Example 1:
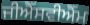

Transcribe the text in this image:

ਜੀਐੱਸਵੀਐੱਮ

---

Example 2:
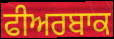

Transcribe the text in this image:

ਫੀਅਰਬਾਕ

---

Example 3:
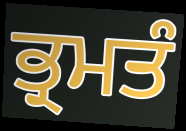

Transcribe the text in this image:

ਭ੍ਰਮਤੰ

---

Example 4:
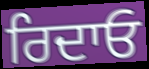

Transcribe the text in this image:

ਰਿਦਾਓ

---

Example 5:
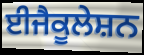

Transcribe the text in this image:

ਈਜੈਕੂਲੇਸ਼ਨ